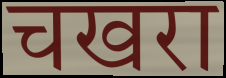
चखरा